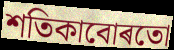
শতিকাবোৰতো